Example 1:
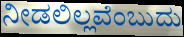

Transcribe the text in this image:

ನೀಡಲಿಲ್ಲವೆಂಬುದು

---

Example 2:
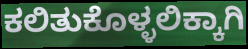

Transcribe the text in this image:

ಕಲಿತುಕೊಳ್ಳಲಿಕ್ಕಾಗಿ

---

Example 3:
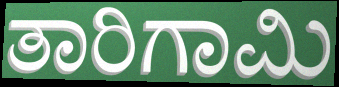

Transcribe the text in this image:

ತಾರಿಗಾಮಿ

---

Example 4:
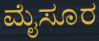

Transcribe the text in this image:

ಮೈಸೂರ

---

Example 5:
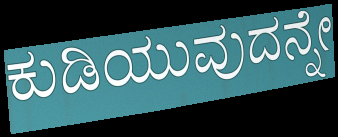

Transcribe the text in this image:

ಕುಡಿಯುವುದನ್ನೇ